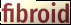
fibroid